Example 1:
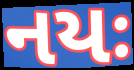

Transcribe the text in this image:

નયઃ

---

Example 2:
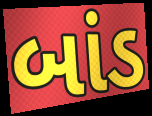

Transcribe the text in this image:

બાંડ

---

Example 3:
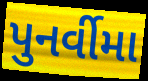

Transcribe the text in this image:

પુનર્વીમા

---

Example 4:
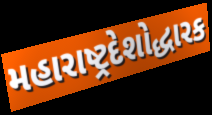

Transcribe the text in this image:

મહારાષ્ટ્રદેશોદ્ધારક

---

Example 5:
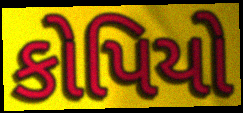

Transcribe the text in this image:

કોપિયો